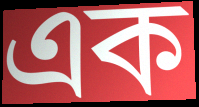
এক